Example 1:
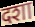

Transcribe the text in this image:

दशा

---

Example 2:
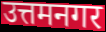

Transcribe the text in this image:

उत्तमनगर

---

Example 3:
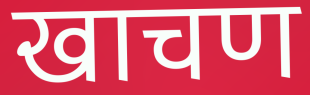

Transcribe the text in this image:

खाचण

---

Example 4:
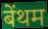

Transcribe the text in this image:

बेंथम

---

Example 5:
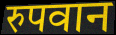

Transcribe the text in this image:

रुपवान